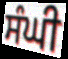
ਸੰਘੀ